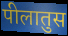
पीलातुस